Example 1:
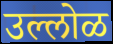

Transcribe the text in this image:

उल्लोळ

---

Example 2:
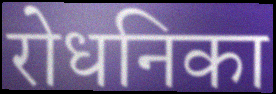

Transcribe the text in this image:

रोधनिका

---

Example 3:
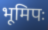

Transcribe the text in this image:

भूमिपः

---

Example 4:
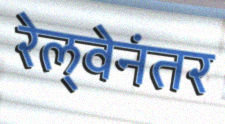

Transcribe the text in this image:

रेल्वेनंतर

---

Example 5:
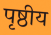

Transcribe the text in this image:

पृष्ठीय